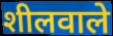
शीलवाले